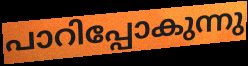
പാറിപ്പോകുന്നു